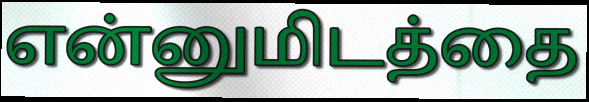
என்னுமிடத்தை